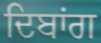
ਦਿਬਾਂਗ